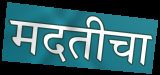
मदतीचा